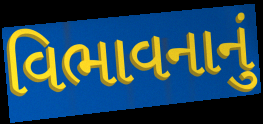
વિભાવનાનું